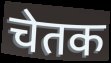
चेतक